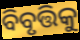
ବିବୃତ୍ତିକୁ